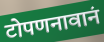
टोपणनावानं